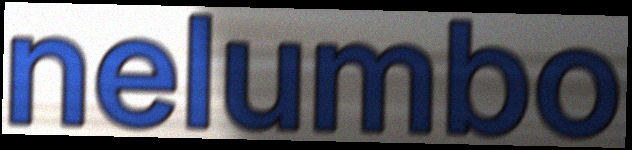
nelumbo